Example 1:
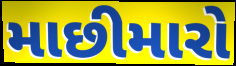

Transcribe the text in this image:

માછીમારો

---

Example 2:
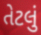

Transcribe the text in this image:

તેટલું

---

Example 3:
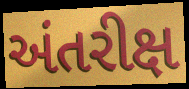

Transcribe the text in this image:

અંતરીક્ષ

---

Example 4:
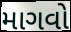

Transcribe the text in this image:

માગવો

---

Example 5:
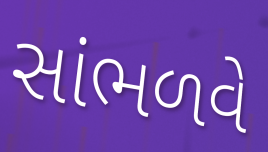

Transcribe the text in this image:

સાંભળવે